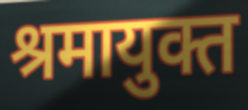
श्रमायुक्त